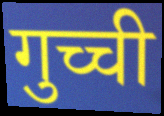
गुच्ची